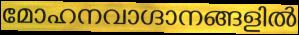
മോഹനവാഗ്ദാനങ്ങളിൽ